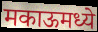
मकाऊमध्ये